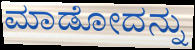
ಮಾಡೋದನ್ನು